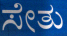
ಸೇತು